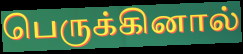
பெருக்கினால்